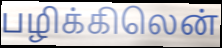
பழிக்கிலென்